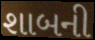
શાબની